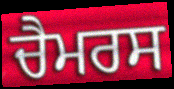
ਚੈਮਰਸ